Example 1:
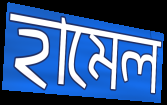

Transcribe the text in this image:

হামেল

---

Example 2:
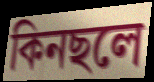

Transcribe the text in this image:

কিনছলে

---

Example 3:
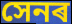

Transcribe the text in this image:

সেনৰ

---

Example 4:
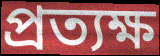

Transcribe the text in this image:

প্ৰত্যক্ষ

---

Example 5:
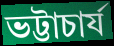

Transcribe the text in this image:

ভট্টাচাৰ্য